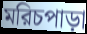
মরিচপাড়া